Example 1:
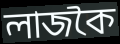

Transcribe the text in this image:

লাজকৈ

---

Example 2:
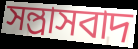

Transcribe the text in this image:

সন্ত্ৰাসবাদ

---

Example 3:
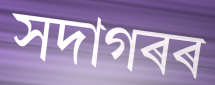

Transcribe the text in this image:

সদাগৰৰ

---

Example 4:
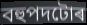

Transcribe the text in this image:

বহুপদটোৰ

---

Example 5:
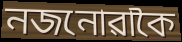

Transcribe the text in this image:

নজনোৱাকৈ